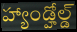
హ్యాండ్హోల్డ్